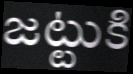
జట్టుకి